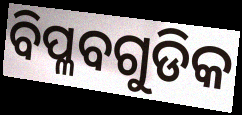
ବିପ୍ଳବଗୁଡିକ